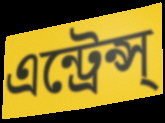
এন্ট্রেন্স্